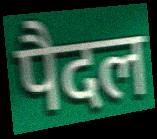
पैदल